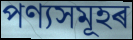
পণ্যসমূহৰ